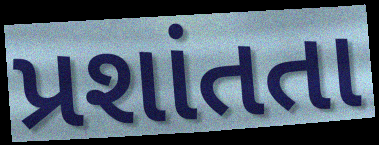
પ્રશાંતતા